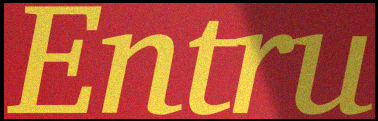
Entru